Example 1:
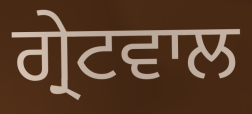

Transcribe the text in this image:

ਗ੍ਰੇਟਵਾਲ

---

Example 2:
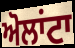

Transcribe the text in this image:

ਅੋਲਾਂਟਾ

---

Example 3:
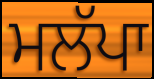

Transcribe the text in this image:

ਮਲੱਪਾ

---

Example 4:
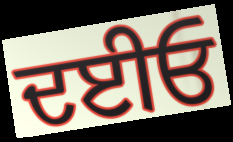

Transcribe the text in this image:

ਦਈਓ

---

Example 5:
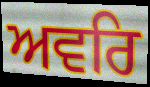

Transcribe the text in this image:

ਅਵਰਿ